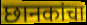
छानकांचा